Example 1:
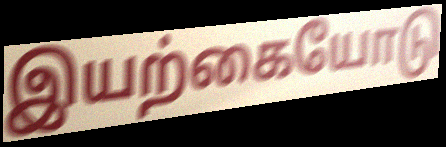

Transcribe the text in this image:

இயற்கையோடு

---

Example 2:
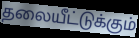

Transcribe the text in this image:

தலையீட்டுக்கும்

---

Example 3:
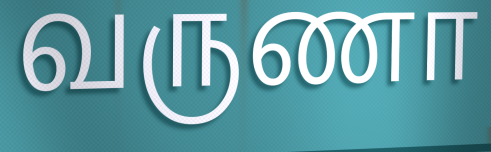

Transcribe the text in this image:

வருணா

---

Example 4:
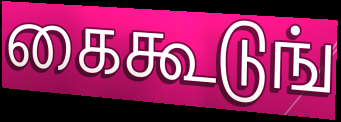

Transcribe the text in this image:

கைகூடுங்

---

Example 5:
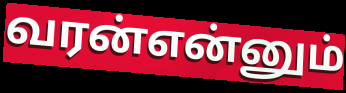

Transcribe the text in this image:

வரன்என்னும்